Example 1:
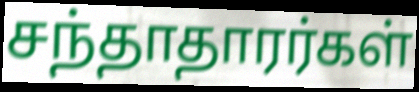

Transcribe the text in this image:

சந்தாதாரர்கள்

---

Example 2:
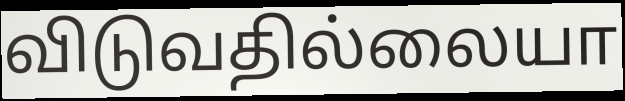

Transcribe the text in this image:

விடுவதில்லையா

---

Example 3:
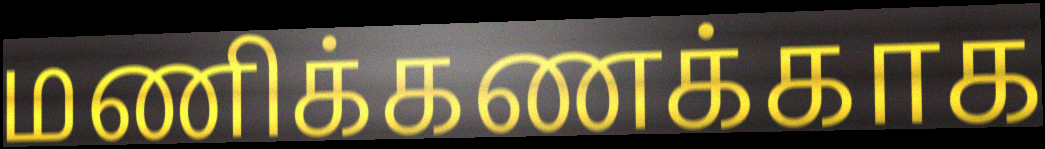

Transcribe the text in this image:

மணிக்கணக்காக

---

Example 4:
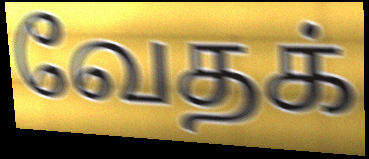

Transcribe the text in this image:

வேதக்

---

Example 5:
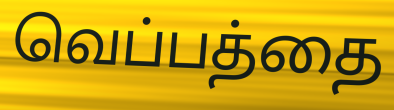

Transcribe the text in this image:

வெப்பத்தை